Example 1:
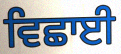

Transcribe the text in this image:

ਵਿਛਾਈ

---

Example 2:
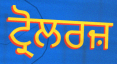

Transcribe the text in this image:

ਟ੍ਰੋਲਰਜ਼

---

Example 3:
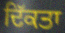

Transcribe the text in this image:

ਦਿੱਕਤਾ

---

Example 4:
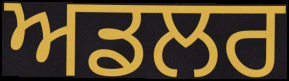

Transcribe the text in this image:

ਅਡਲਰ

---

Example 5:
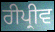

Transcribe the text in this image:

ਰੀਪ੍ਰੀਵ